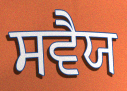
ਸਵੈਯ